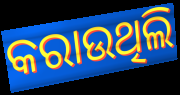
କରାଉଥିଲି